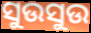
ସୁଉସୁଉ